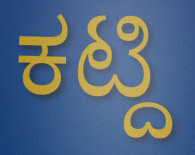
ಕಟ್ದಿ